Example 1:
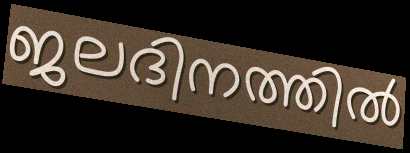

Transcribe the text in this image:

ജലദിനത്തിൽ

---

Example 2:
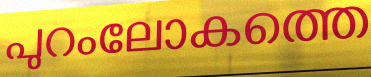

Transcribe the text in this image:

പുറംലോകത്തെ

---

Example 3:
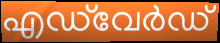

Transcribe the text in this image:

എഡ്‌വേർഡ്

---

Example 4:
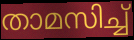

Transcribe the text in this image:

താമസിച്ച്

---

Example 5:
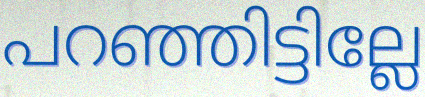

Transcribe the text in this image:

പറഞ്ഞിട്ടില്ലേ